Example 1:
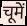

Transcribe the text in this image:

चूमें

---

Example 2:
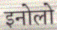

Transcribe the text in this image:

इनोलो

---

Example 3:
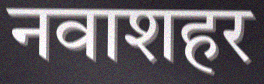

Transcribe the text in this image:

नवाशहर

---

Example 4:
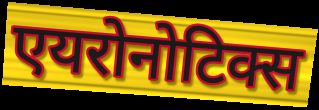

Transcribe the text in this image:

एयरोनोटिक्स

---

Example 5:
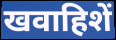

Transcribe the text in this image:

खवाहिशें